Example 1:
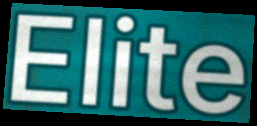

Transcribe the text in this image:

Elite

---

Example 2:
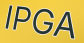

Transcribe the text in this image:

IPGA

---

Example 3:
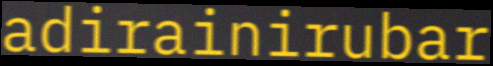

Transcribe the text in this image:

adirainirubar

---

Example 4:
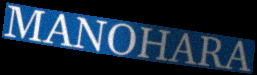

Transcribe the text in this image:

MANOHARA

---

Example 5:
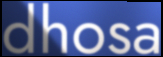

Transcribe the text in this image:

dhosa